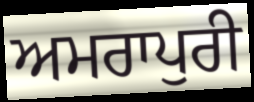
ਅਮਰਾਪੁਰੀ